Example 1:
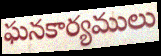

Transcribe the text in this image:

ఘనకార్యములు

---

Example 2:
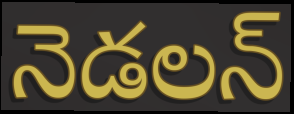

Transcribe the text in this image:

నెడలన్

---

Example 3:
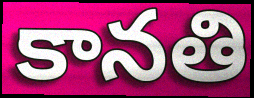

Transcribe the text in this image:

కానతి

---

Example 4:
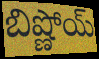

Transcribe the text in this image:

బిష్ణోయ్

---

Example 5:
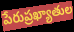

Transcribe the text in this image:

పేరుప్రఖ్యాతుల